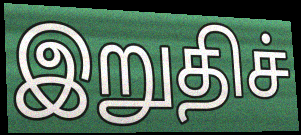
இறுதிச்